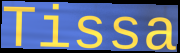
Tissa